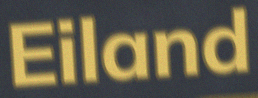
Eiland